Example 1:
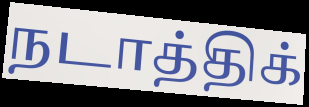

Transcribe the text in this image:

நடாத்திக்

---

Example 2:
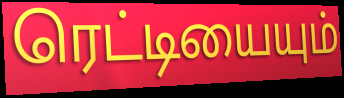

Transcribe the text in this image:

ரெட்டியையும்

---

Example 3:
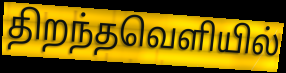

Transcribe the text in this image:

திறந்தவெளியில்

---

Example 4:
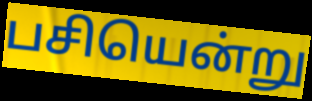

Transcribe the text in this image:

பசியென்று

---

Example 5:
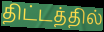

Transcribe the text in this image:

திட்டத்தில்